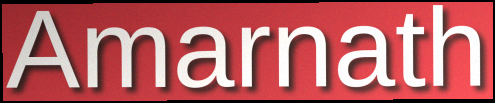
Amarnath